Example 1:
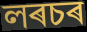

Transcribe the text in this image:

লৰচৰ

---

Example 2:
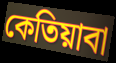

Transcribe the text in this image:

কেতিয়াবা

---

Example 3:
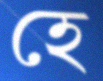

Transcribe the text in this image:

হে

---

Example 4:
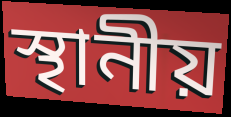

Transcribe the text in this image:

স্থানীয়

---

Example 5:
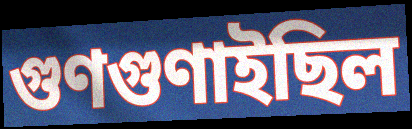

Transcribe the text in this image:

গুণগুণাইছিল